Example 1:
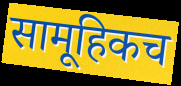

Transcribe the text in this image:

सामूहिकच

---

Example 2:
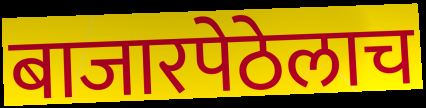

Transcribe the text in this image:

बाजारपेठेलाच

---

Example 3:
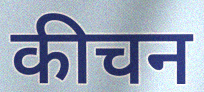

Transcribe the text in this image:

कीचन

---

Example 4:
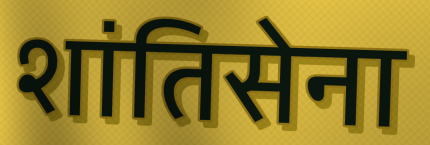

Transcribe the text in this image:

शांतिसेना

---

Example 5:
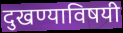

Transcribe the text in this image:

दुखण्याविषयी